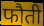
फौती